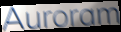
Auroram